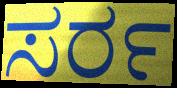
ಸರ್ರ